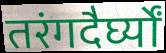
तरंगदैर्घ्यों